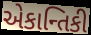
એકાન્તિકી